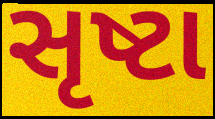
સૃષ્ટા